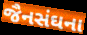
જૈનસંઘના